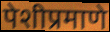
पेशीप्रमाणे